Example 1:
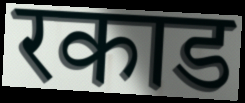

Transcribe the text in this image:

रकाड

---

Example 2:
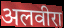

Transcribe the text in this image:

अलवीरा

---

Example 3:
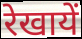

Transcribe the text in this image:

रेखायें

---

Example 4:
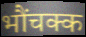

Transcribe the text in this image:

भौंचक्क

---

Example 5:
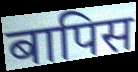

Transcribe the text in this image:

बापिस